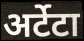
अर्टेटा